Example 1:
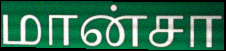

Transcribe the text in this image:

மான்சா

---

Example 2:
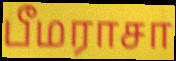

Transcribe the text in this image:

பீமராசா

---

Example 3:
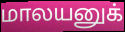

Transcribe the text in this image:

மாலயனுக்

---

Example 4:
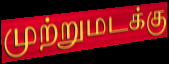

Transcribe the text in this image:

முற்றுமடக்கு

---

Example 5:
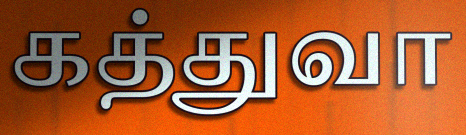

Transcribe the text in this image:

கத்துவா